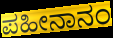
ಪಹೀನಾನಂ